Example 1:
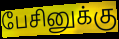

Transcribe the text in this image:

பேசினுக்கு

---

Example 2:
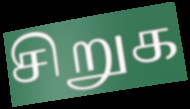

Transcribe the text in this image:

சிறுக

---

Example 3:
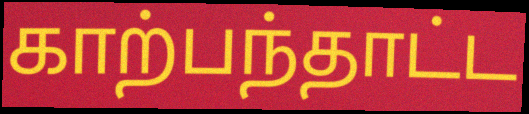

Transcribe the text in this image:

காற்பந்தாட்ட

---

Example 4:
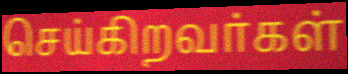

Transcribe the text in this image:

செய்கிறவர்கள்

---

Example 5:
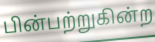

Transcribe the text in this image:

பின்பற்றுகின்ற